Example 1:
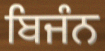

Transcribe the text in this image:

ਬਿਜੰਨ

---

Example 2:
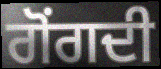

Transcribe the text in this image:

ਗੋਂਗਦੀ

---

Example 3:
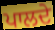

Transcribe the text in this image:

ਪਾਲਦੇ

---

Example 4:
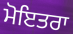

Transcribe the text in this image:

ਮੋਇਤਰਾ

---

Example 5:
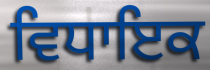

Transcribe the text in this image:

ਵਿਧਾਇਕ